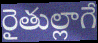
రైతుల్లాగే